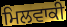
ਮਿਲਵਾਕੀ